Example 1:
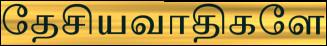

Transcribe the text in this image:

தேசியவாதிகளே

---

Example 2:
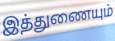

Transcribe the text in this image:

இத்துணையும்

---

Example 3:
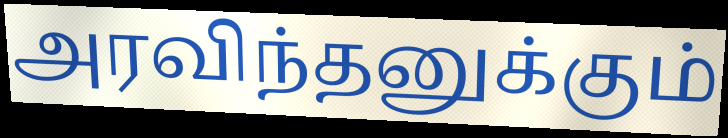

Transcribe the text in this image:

அரவிந்தனுக்கும்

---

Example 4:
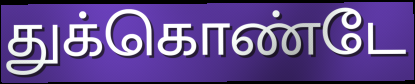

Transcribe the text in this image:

துக்கொண்டே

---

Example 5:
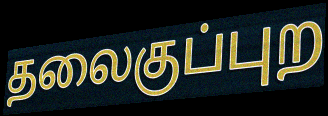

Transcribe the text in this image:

தலைகுப்புற